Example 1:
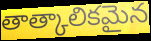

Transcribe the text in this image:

తాత్కాలికమైన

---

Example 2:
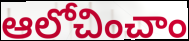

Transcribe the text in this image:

ఆలోచించాం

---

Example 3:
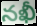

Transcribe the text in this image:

నఖీ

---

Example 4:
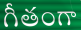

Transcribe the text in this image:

గీతంగా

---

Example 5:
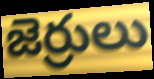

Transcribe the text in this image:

జెర్రులు